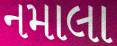
નમાલા